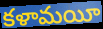
కళామయీ